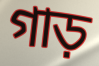
গাড়